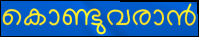
കൊണ്ടുവരാൻ